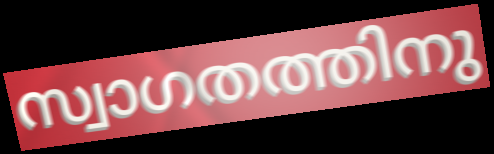
സ്വാഗതത്തിനു